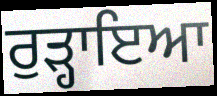
ਰੁੜ੍ਹਾਇਆ